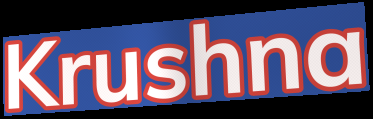
Krushna